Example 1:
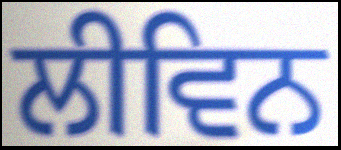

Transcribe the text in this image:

ਲੀਵਿਨ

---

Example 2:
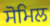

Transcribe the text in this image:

ਸੋਮਿਲ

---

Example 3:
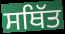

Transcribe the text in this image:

ਸਥਿੱਤ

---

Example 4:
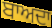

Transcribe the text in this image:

ਬਾਅਦਾ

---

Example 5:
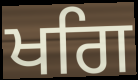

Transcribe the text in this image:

ਖਗਿ